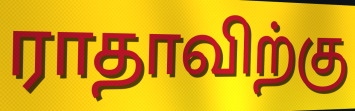
ராதாவிற்கு